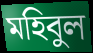
মহিবুল